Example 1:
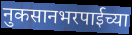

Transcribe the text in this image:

नुकसानभरपाईच्या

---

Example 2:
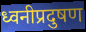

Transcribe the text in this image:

ध्वनीप्रदुषण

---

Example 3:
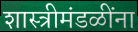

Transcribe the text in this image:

शास्त्रीमंडळींना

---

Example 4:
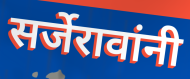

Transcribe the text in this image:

सर्जेरावांनी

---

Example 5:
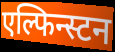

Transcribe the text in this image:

एल्फिन्स्टन